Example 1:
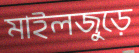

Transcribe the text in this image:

মাইলজুড়ে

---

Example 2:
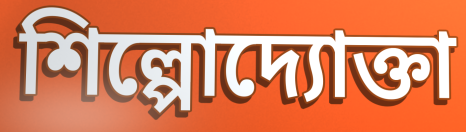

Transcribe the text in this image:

শিল্পোদ্যোক্তা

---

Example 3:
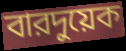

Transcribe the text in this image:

বারদুয়েক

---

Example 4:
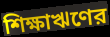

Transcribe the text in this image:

শিক্ষাঋণের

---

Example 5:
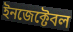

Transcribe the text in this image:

ইনজেক্টেবল